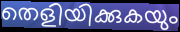
തെളിയിക്കുകയും